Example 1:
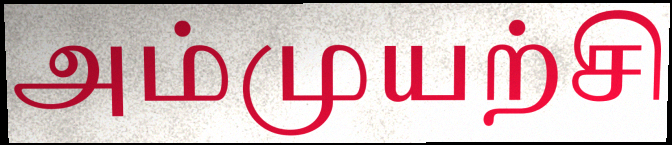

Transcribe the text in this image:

அம்முயற்சி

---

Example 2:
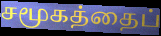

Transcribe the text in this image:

சமூகத்தைப்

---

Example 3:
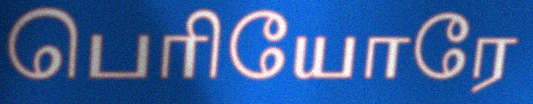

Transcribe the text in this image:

பெரியோரே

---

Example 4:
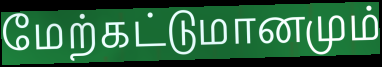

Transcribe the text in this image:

மேற்கட்டுமானமும்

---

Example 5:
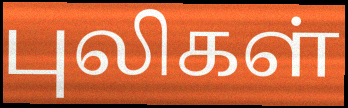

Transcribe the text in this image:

புலிகள்